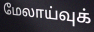
மேலாய்வுக்